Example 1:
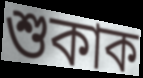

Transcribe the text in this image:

শুকাক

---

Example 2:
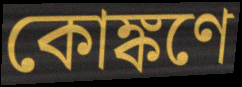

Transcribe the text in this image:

কোঙ্কণে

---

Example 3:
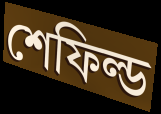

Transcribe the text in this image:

শেফিল্ড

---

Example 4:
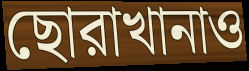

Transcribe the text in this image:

ছোরাখানাও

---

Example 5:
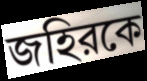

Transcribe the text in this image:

জহিরকে